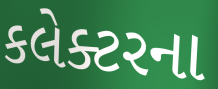
કલેક્ટરના